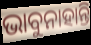
ଭାବୁନାହାନ୍ତି